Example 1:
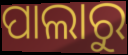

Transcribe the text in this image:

ପାଲାରୁ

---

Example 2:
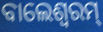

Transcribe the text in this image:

ବାଲେଶ୍ବରମ୍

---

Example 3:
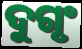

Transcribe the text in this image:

ଦୁଗୃଂ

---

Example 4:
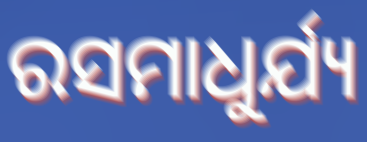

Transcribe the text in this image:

ରସମାଧୁର୍ଯ୍ୟ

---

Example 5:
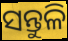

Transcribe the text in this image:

ସନ୍ତୁଳି